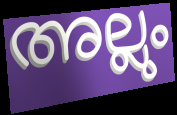
അല്ലും